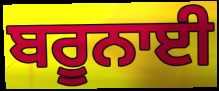
ਬਰੂਨਾਈ